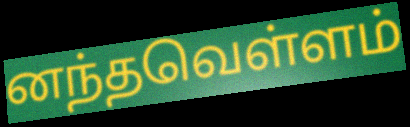
னந்தவெள்ளம்